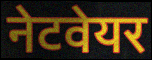
नेटवेयर